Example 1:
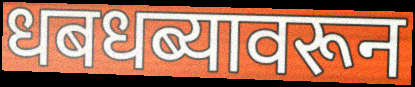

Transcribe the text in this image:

धबधब्यावरून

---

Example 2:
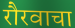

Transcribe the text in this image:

रौरवाचा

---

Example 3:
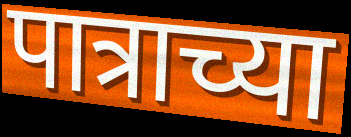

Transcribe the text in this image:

पात्राच्‍या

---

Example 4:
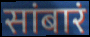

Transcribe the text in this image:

सांबारं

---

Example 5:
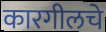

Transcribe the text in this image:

कारगीलचे